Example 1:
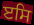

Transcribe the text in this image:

ੲਸਿ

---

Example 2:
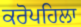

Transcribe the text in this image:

ਕਰੋਪਹਿਲਾ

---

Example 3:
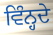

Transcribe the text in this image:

ਵਿੰਨ੍ਹਦੇ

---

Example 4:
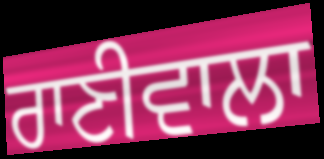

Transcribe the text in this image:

ਰਾਣੀਵਾਲਾ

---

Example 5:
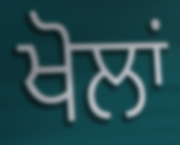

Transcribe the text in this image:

ਖੋਲਾਂ